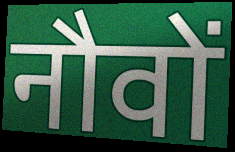
नौवों